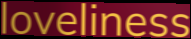
loveliness